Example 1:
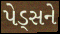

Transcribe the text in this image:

પેડ્સને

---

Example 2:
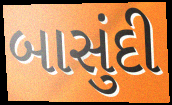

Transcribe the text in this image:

બાસુંદી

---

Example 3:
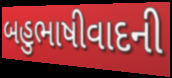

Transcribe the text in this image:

બહુભાષીવાદની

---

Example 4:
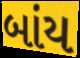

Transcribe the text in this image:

બાંય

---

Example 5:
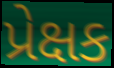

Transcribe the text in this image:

પ્રેક્ષક